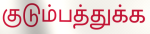
குடும்பத்துக்க